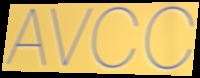
AVCC